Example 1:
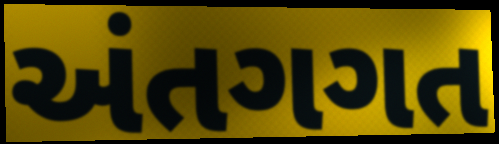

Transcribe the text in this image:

અંતગગત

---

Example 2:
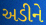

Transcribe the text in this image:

અડીને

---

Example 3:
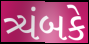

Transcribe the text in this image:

ત્ર્યંબકે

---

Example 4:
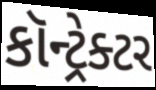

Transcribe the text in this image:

કૉન્ટ્રેક્ટર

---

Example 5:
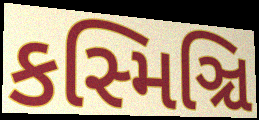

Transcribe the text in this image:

કસ્મિઞ્ચિ